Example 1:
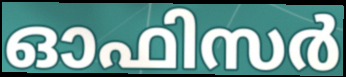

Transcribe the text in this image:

ഓഫിസർ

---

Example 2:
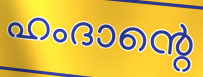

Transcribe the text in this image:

ഹംദാന്റെ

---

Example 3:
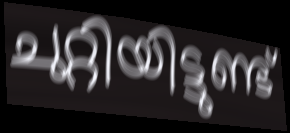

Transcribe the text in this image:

ചുറ്റിയിട്ടുണ്ട്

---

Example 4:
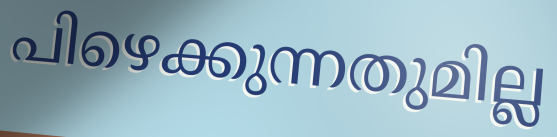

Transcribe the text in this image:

പിഴെക്കുന്നതുമില്ല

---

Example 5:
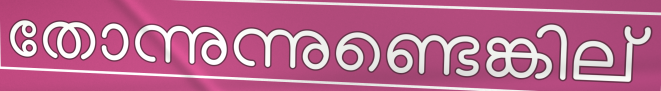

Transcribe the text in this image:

തോന്നുന്നുണ്ടെങ്കില്